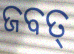
ଜବତ୍